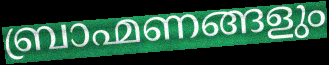
ബ്രാഹ്മണങ്ങളും